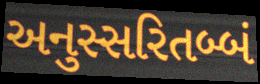
અનુસ્સરિતબ્બં